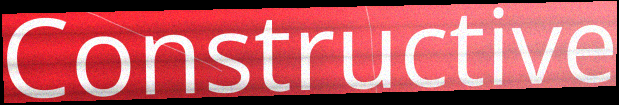
Constructive